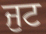
ਜੁਟ